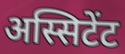
अस्सिटेंट